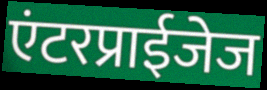
एंटरप्राईजेज